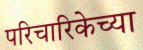
परिचारिकेच्या